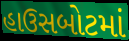
હાઉસબોટમાં